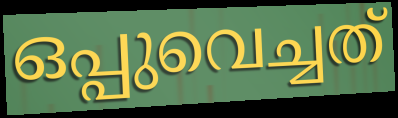
ഒപ്പുവെച്ചത്